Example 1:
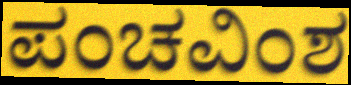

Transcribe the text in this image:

ಪಂಚವಿಂಶ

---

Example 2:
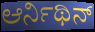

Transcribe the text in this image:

ಆರ್ನಿಥಿನ್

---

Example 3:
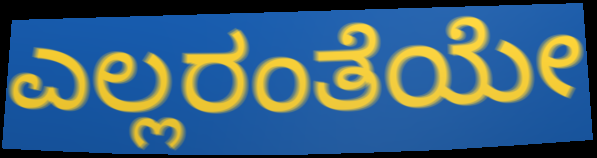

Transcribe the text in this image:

ಎಲ್ಲರಂತೆಯೇ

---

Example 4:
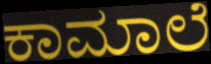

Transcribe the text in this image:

ಕಾಮಾಲೆ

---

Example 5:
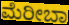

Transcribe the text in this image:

ಮೆರೀಬಾ